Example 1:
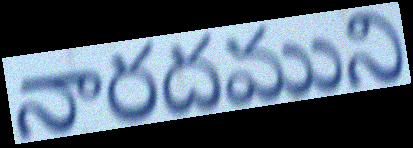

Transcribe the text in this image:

నారదముని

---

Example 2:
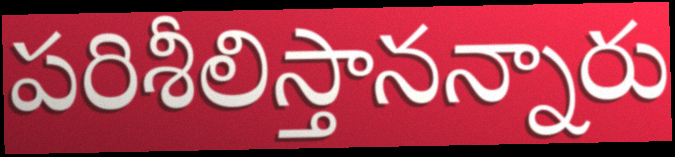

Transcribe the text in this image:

పరిశీలిస్తానన్నారు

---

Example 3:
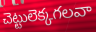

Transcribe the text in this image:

చెట్టులెక్కగలవా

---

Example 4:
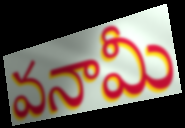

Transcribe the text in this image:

వనామీ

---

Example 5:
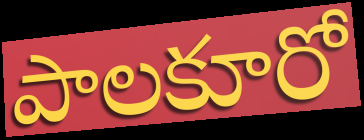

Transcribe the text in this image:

పాలకూరో